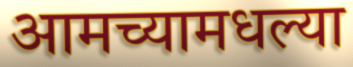
आमच्यामधल्या